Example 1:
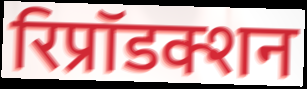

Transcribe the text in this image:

रिप्रॉडक्शन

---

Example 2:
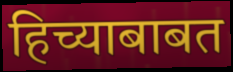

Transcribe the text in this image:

हिच्याबाबत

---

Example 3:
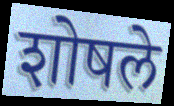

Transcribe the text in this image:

शोषले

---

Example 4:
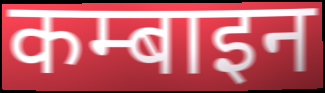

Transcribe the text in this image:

कम्बाइन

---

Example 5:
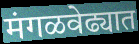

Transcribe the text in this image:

मंगळवेढ्यात